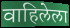
वाहिलेला